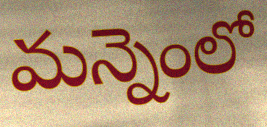
మన్నెంలో